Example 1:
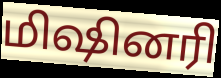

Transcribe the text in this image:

மிஷினரி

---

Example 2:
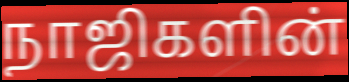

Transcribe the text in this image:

நாஜிகளின்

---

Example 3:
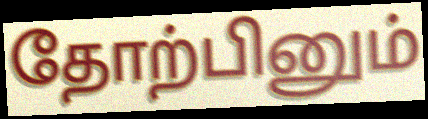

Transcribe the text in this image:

தோற்பினும்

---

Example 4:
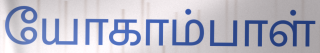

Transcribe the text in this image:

யோகாம்பாள்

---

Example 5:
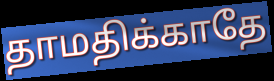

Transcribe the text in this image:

தாமதிக்காதே